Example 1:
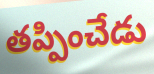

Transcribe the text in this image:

తప్పించేడు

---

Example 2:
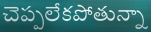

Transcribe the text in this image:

చెప్పలేకపోతున్నా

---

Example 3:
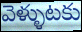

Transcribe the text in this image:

వెళ్ళుటకు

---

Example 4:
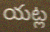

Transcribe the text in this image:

యట్ల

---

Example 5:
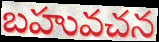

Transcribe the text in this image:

బహువచన